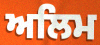
ਅਲਿਮ